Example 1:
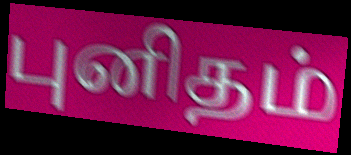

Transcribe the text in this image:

புனிதம்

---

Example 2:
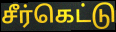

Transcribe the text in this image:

சீர்கெட்டு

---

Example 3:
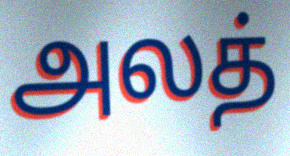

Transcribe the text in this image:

அலத்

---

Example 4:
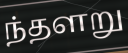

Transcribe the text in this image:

ந்தளறு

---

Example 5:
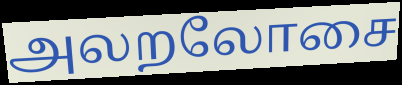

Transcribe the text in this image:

அலறலோசை